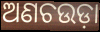
ଅଣଚଉଡ଼ା